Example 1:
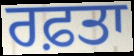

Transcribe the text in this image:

ਰਫ਼ਤਾ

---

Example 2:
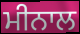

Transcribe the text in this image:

ਮੀਨਾਲ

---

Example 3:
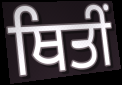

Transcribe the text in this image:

ਥਿਤੀਂ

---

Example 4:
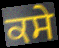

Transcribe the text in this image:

ਕਸੇ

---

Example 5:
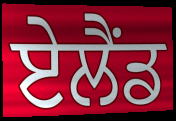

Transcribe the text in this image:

ਏਲੈਂਡ